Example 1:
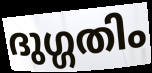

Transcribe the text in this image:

ദുഗ്ഗതിം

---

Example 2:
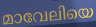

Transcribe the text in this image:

മാവേലിയെ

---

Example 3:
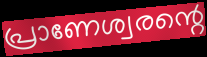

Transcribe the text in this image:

പ്രാണേശ്വരന്റെ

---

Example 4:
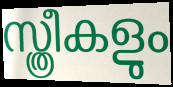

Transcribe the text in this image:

സ്ത്രീകളും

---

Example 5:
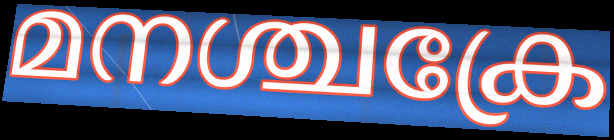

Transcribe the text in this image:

മനശ്ചക്രേ